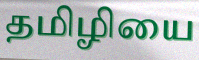
தமிழியை